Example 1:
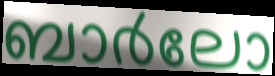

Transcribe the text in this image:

ബാർലോ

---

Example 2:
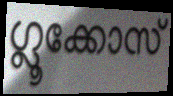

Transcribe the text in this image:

ഗ്ലൂക്കോസ്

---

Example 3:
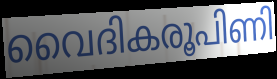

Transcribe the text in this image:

വൈദികരൂപിണി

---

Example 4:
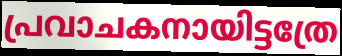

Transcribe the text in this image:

പ്രവാചകനായിട്ടത്രേ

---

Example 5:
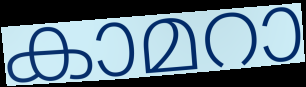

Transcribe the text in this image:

കാമറാ